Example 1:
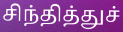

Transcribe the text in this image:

சிந்தித்துச்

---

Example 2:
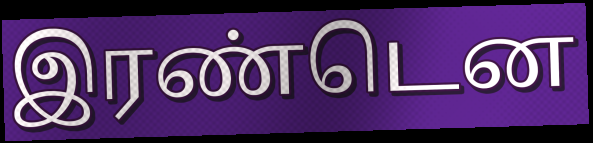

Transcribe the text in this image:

இரண்டென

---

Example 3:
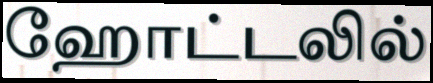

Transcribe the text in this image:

ஹோட்டலில்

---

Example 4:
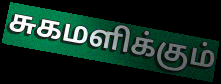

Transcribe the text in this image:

சுகமளிக்கும்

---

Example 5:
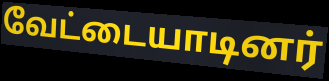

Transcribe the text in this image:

வேட்டையாடினர்